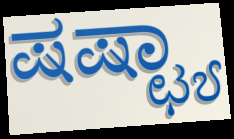
ಷಷ್ಟ್ಯಾ